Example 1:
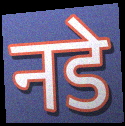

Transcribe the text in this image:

नडे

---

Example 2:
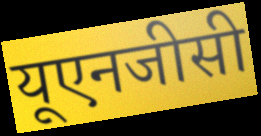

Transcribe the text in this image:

यूएनजीसी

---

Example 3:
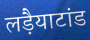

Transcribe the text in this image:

लड़ैयाटांड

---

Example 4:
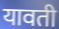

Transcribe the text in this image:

यावती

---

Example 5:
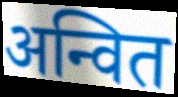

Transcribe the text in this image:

अन्वित